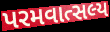
પરમવાત્સલ્ય